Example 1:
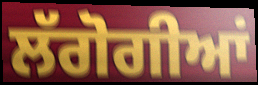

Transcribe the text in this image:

ਲੱਗੋਗੀਆਂ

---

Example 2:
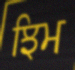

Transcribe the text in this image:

ਝਿਮ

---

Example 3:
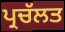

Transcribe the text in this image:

ਪ੍ਰਚੱਲਤ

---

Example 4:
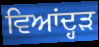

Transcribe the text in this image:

ਵਿਆਂਦ੍ਹੜ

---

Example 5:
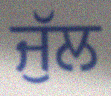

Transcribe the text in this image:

ਜੁੱਲ